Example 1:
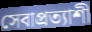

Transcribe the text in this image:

সেবাপ্রত্যাশী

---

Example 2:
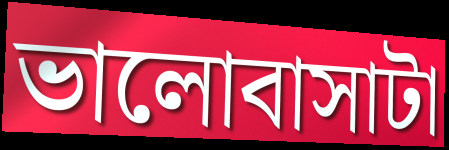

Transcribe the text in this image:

ভালোবাসাটা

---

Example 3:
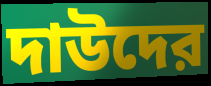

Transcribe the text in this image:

দাউদের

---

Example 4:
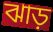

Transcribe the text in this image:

ঝাড়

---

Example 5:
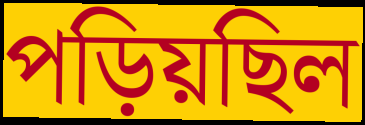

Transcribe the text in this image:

পড়িয়ছিল